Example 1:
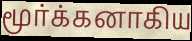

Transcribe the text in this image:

மூர்க்கனாகிய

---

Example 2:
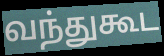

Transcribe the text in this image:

வந்துகூட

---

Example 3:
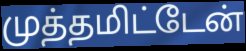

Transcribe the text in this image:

முத்தமிட்டேன்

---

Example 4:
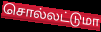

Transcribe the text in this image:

சொல்லட்டுமா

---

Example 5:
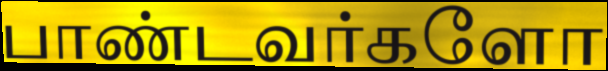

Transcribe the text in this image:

பாண்டவர்களோ